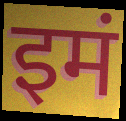
इमं